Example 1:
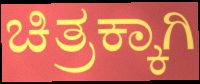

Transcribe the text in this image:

ಚಿತ್ರಕ್ಕಾಗಿ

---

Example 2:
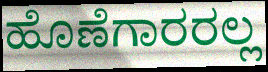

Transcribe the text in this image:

ಹೊಣೆಗಾರರಲ್ಲ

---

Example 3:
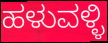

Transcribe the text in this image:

ಹಳುವಳ್ಳಿ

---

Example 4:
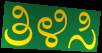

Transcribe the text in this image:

ತಿಳಿಸಿ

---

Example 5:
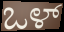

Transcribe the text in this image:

ಒಳ್